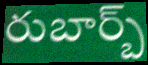
రుబార్బ్